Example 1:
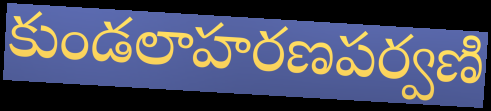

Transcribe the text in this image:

కుండలాహరణపర్వణి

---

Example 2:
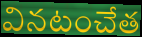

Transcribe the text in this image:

వినటంచేత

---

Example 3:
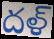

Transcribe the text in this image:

దళ్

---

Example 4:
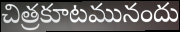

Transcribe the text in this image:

చిత్రకూటమునందు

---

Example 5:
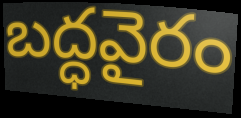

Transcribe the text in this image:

బద్ధవైరం